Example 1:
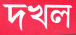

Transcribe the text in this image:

দখল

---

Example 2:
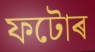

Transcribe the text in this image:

ফটোৰ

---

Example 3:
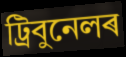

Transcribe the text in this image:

ট্ৰিবুনেলৰ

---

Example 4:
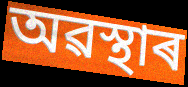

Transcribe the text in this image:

অৱস্থাৰ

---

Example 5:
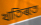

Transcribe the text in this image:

খাতিৰতে